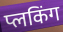
प्लकिंग